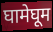
घामेघूम